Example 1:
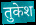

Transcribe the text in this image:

तुकेश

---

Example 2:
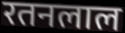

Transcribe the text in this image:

रतनलाल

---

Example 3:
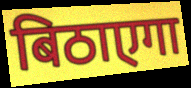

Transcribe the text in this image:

बिठाएगा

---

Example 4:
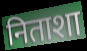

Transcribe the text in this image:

निताशा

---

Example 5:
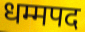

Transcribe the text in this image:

धम्मपद